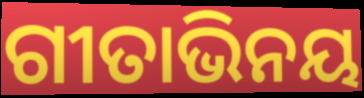
ଗୀତାଭିନୟ